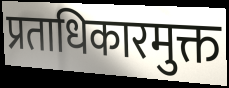
प्रताधिकारमुक्त